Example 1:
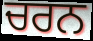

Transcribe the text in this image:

ਚਰਨ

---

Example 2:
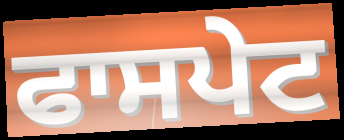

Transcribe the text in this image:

ਫਾਸਪੇਟ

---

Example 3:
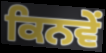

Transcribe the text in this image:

ਕਿਨਵੇਂ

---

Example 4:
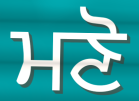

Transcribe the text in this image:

ਮਣੋ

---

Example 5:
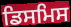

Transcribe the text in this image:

ਡਿਸਮਿਸ